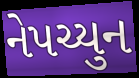
નેપચ્યુન